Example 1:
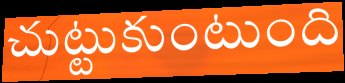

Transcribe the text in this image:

చుట్టుకుంటుంది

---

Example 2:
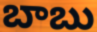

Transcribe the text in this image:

బాబు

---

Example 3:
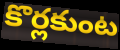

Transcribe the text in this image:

కొర్లకుంట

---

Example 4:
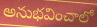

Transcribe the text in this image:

అనుభవించాలో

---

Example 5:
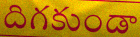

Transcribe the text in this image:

దిగకుండా